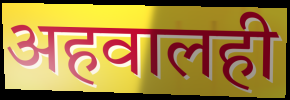
अहवालही